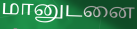
மானுடனை